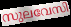
സുലവേസി